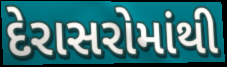
દેરાસરોમાંથી